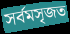
সর্বমসৃজত